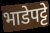
भाडेपट्टे